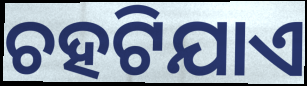
ଚହଟିଯାଏ